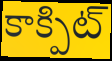
కాక్పిట్